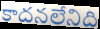
కాదనలేనిది